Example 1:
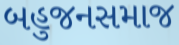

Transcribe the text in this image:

બહુજનસમાજ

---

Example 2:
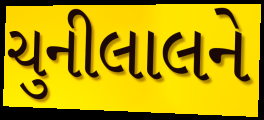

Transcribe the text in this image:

ચુનીલાલને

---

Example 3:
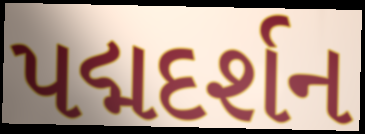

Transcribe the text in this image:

પદ્મદર્શન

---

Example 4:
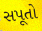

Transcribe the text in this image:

સપૂતો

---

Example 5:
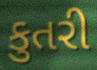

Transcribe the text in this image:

કુતરી